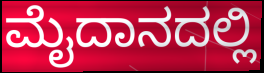
ಮೈದಾನದಲ್ಲಿ